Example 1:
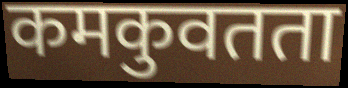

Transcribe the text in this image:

कमकुवतता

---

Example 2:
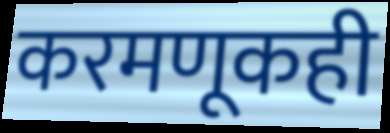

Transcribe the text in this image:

करमणूकही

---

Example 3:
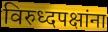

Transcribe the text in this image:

विरुध्दपक्षांना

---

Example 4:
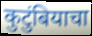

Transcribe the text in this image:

कुटुंबियाचा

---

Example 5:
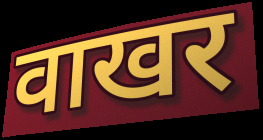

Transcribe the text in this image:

वाखर